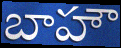
బాహౌ